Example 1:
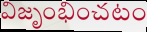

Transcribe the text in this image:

విజృంభించటం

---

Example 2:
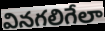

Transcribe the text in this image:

వినగలిగేలా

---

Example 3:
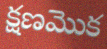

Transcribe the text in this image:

క్షణమొక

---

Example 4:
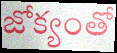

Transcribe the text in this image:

జోక్యంతో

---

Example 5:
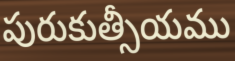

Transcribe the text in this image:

పురుకుత్సీయము